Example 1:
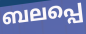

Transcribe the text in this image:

ബലപ്പെ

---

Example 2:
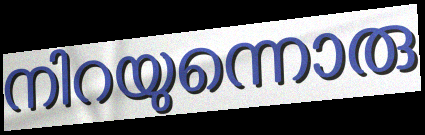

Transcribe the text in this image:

നിറയുന്നൊരു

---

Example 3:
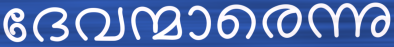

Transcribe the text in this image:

ദേവന്മാരെന്നു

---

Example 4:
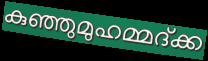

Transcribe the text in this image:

കുഞ്ഞുമുഹമ്മദ്ക്ക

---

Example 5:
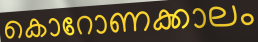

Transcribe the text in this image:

കൊറോണക്കാലം